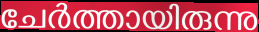
ചേർത്തായിരുന്നു